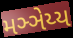
મઞ્ઞેય્ય